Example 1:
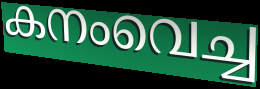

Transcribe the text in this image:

കനംവെച്ച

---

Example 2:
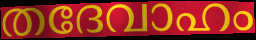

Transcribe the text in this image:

തദേവാഹം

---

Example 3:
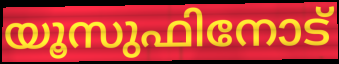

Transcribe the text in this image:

യൂസുഫിനോട്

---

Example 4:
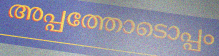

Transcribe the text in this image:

അപ്പത്തോടൊപ്പം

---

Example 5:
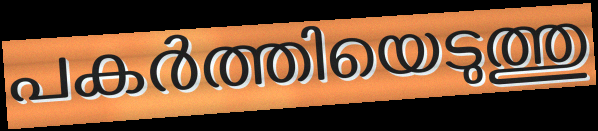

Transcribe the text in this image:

പകർത്തിയെടുത്തു